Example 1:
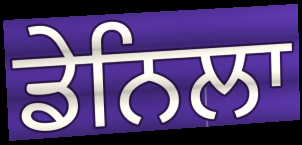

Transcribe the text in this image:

ਡੇਨਿਲਾ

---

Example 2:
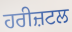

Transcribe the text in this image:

ਹਰੀਜ਼ਟਲ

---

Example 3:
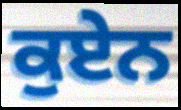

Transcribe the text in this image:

ਕੁਏਨ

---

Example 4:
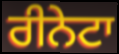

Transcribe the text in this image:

ਰੀਨੇਟਾ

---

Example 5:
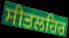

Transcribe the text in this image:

ਸੀਤਲਹਿਰ